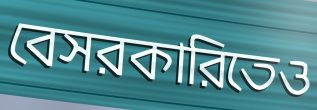
বেসরকারিতেও